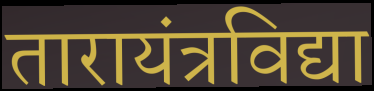
तारायंत्रविद्या